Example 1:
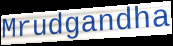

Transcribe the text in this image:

Mrudgandha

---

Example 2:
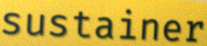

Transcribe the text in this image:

sustainer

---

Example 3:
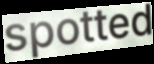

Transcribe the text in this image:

spotted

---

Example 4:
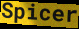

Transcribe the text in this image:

Spicer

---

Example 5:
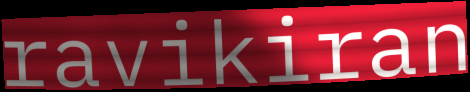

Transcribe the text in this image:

ravikiran